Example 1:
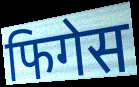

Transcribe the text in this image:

फिगेस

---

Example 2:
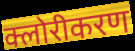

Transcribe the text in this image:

क्लोरीकरण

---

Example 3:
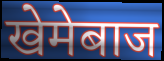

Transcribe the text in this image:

खेमेबाज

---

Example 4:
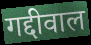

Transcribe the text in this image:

गद्दीवाल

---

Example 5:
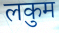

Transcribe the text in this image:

लकुम